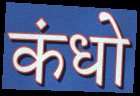
कंधो